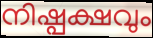
നിഷ്പക്ഷവും